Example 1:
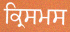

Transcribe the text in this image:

ਕ੍ਰਿਸਮਸ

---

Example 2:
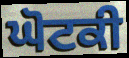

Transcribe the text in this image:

ਘੋਟਕੀ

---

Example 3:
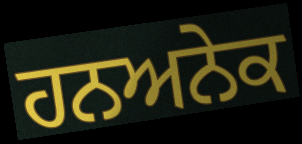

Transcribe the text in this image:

ਹਨਅਨੇਕ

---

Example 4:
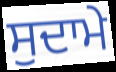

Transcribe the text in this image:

ਸੁਦਾਮੇ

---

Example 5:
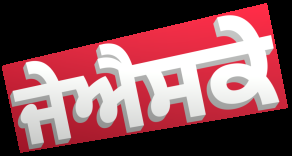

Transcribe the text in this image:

ਜੇਐਸਕੇ